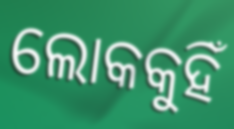
ଲୋକକୁହିଁ